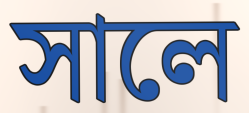
সালে